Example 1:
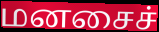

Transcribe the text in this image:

மனசைச்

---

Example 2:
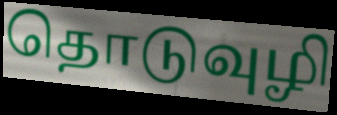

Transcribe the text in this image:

தொடுவுழி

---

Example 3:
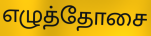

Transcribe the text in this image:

எழுத்தோசை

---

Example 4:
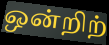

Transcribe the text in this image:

ஒன்றிற்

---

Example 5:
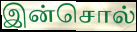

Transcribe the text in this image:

இன்சொல்